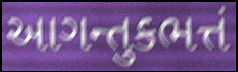
આગન્તુકભત્તં